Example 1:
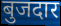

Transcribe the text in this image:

बुजदार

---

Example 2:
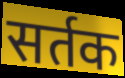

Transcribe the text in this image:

सर्तक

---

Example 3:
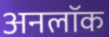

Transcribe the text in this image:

अनलॉक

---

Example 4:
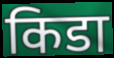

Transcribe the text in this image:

किडा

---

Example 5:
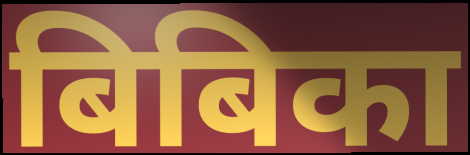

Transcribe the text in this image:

बिबिका